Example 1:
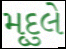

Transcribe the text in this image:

મૃદુલે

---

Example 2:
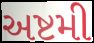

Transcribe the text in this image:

અષ્ટમી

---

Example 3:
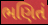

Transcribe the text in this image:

ભણિતં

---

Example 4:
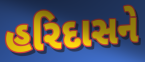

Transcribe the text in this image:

હરિદાસને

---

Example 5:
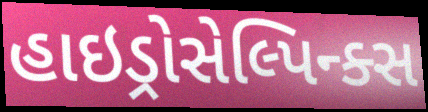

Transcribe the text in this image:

હાઇડ્રોસેલ્પિન્ક્સ